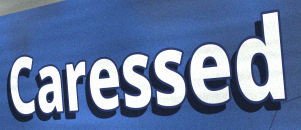
Caressed